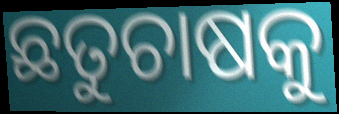
ଛତୁଚାଷକୁ